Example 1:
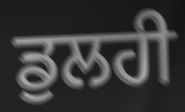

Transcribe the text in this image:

ਡੁਲਹੀ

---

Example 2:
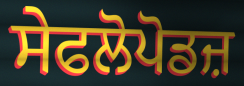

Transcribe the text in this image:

ਸੇਫਲੋਪੋਡਜ਼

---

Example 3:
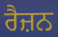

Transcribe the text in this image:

ਰੈਜ਼ਨ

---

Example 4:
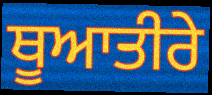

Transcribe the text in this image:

ਥੂਆਤੀਰੇ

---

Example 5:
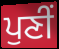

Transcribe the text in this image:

ਪੁਣੀਂ